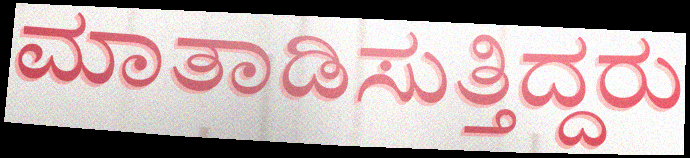
ಮಾತಾಡಿಸುತ್ತಿದ್ದರು